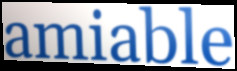
amiable